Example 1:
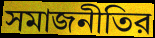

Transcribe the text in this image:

সমাজনীতির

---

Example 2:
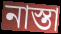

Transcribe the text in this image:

নাস্তা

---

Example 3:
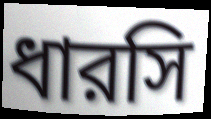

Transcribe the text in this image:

ধারসি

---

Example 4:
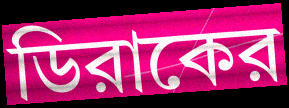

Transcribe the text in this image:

ডিরাকের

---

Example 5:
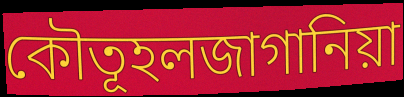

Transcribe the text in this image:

কৌতূহলজাগানিয়া